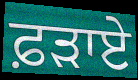
ਫ਼ੜਾਏ